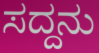
ಸದ್ದನು